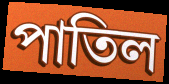
পাতিল